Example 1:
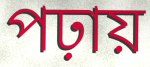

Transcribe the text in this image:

পঢ়ায়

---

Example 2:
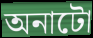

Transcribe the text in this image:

অনাটো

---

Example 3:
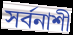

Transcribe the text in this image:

সৰ্বনাশী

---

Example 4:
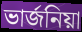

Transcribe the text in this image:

ভাৰ্জনিয়া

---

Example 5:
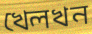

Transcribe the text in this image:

খেলখন